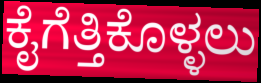
ಕೈಗೆತ್ತಿಕೊಳ್ಳಲು